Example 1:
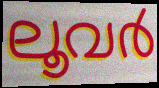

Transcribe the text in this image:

ലൂവർ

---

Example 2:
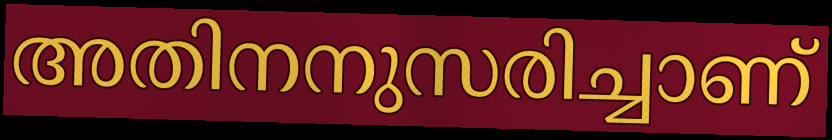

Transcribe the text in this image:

അതിനനുസരിച്ചാണ്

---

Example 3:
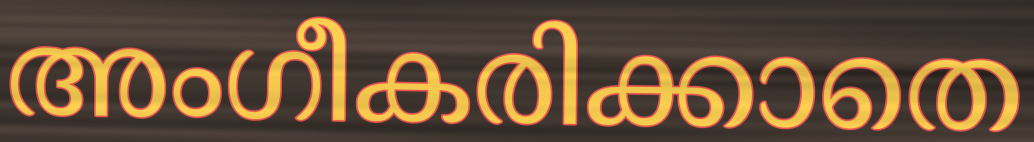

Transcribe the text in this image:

അംഗീകരിക്കാതെ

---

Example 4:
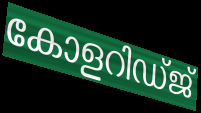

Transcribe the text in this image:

കോളറിഡ്ജ്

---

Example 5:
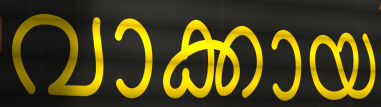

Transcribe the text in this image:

വാക്കായ